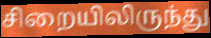
சிறையிலிருந்து